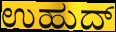
ಉಹುದ್